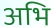
अभि